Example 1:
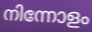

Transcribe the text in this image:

നിന്നോളം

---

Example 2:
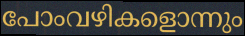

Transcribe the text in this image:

പോംവഴികളൊന്നും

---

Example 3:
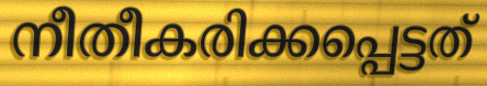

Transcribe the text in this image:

നീതീകരിക്കപ്പെട്ടത്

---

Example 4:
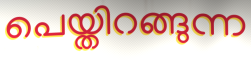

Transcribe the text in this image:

പെയ്തിറങ്ങുന്ന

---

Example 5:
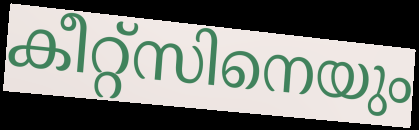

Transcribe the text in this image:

കീറ്റ്സിനെയും